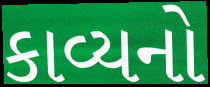
કાવ્યનો